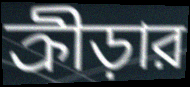
ক্রীড়ার